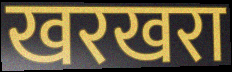
खरखरा